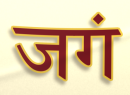
जगं